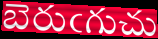
బెరుఁగుచు